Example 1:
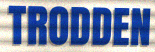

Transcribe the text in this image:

TRODDEN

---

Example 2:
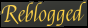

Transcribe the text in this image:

Reblogged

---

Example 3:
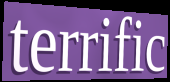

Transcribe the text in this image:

terrific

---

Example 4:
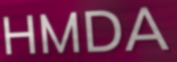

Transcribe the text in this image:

HMDA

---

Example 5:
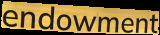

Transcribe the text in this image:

endowment